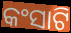
କଂସାଟି